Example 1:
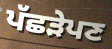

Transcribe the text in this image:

ਪੱਛੜੇਪਣ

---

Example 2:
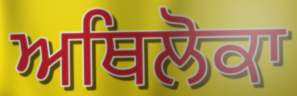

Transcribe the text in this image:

ਅਥਿਲੋਕਾ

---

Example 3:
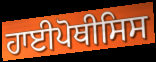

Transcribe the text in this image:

ਹਾਈਪੋਥੀਸਿਸ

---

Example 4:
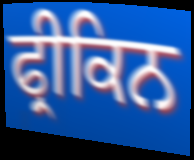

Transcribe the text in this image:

ਫ੍ਰੀਕਿਨ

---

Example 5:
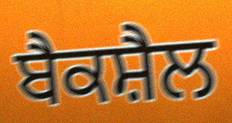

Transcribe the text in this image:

ਬੈਕਸ਼ੈਲ